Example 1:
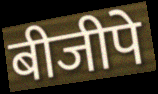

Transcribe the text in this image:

बीजीपे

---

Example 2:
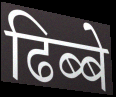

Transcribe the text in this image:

ढिब्बे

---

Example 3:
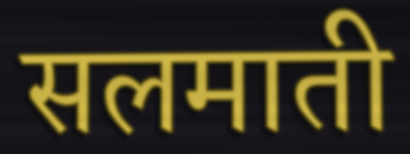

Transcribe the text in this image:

सलमाती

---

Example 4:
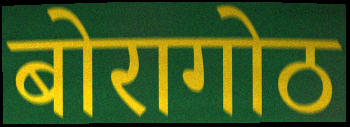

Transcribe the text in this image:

बोरागोठ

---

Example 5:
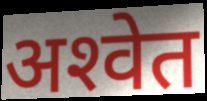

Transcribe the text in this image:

अश्‍वेत